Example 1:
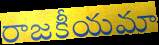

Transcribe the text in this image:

రాజకీయమా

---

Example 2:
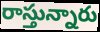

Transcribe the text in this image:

రాస్తున్నారు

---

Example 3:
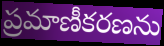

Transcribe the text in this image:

ప్రమాణీకరణను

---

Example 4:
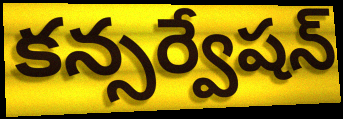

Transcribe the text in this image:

కన్సర్వేషన్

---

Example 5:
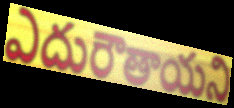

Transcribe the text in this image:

ఎదురౌతాయని